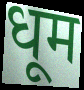
धूम